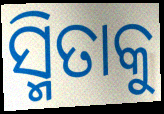
ସ୍ମିତାକୁ